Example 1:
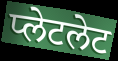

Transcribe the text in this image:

प्लेटलेट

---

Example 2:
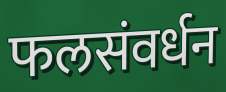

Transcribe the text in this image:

फलसंवर्धन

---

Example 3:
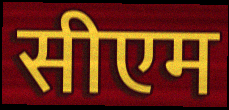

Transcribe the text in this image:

सीएम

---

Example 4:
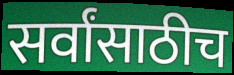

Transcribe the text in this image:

सर्वांसाठीच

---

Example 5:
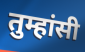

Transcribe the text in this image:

तुम्हांसी